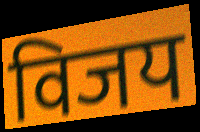
विजय